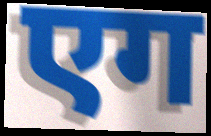
एग